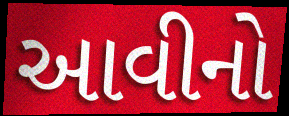
આવીનો